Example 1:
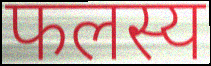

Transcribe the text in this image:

फलस्य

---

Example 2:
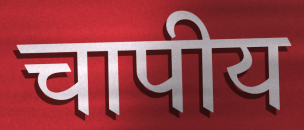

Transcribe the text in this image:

चापीय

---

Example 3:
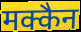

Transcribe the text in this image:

मक्कैन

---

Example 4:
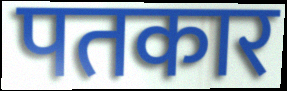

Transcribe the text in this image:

पतकार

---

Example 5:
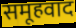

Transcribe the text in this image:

समूहवाद